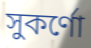
সুকৰ্ণো